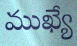
ముఖ్యే